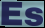
Es